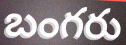
బంగరు